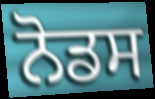
ਨੋਡਸ